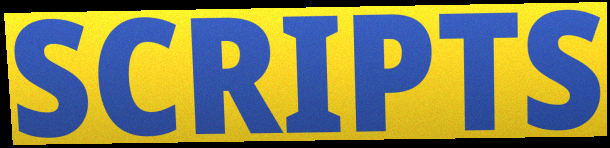
SCRIPTS